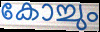
കോച്ചും